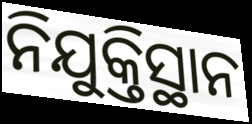
ନିଯୁକ୍ତିସ୍ଥାନ